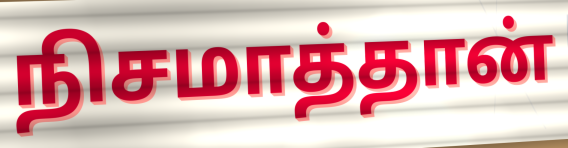
நிசமாத்தான்